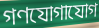
গণযোগাযোগ